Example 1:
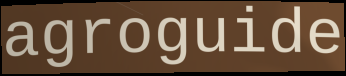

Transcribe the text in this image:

agroguide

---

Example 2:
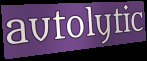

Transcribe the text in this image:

autolytic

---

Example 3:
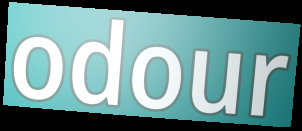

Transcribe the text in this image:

odour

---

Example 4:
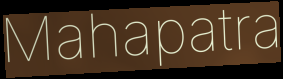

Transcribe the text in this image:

Mahapatra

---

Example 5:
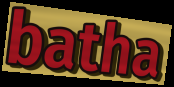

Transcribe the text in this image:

batha